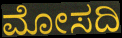
ಮೋಸದಿ